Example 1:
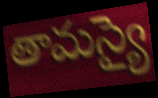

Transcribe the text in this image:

తామస్యై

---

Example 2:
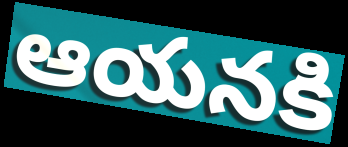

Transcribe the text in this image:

ఆయనకి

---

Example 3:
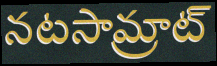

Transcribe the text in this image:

నటసామ్రాట్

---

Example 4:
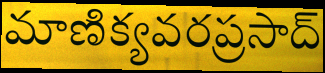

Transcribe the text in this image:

మాణిక్యవరప్రసాద్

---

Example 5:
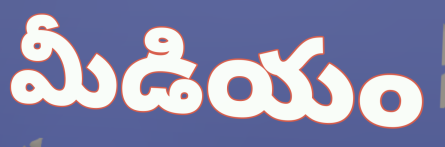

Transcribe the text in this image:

మీడియం